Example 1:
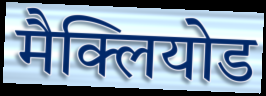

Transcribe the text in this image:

मैक्लियोड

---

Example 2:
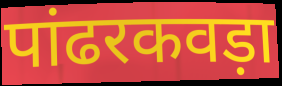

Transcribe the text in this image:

पांढरकवड़ा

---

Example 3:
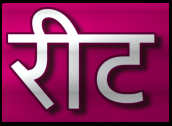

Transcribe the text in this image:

रीट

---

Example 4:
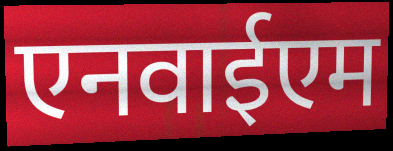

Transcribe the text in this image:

एनवाईएम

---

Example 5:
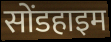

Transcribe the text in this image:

सोंडहाइम